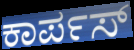
ಕಾರ್ಪಸ್